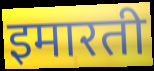
इमारती